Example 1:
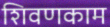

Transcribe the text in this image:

शिवणकाम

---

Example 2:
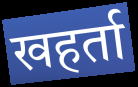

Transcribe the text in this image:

खहर्ता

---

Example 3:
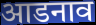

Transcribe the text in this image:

आडनाव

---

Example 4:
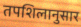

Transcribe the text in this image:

तपशिलानुसार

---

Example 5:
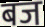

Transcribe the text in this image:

बज